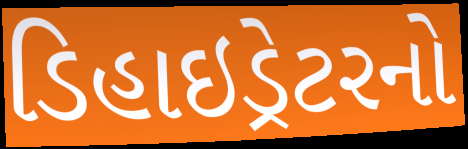
ડિહાઇડ્રેટરનો